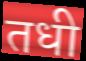
तधी